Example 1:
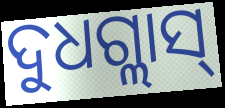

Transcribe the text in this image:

ଦୁଧଗ୍ଲାସ୍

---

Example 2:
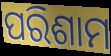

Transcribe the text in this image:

ପରିଶାମ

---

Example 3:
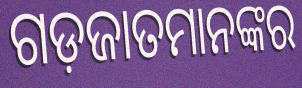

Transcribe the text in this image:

ଗଡ଼ଜାତମାନଙ୍କର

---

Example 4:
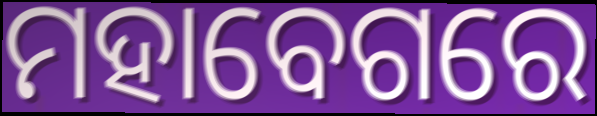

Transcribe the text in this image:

ମହାବେଗରେ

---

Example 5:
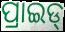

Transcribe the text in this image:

ପ୍ରାଇଡ୍